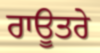
ਰਾਊਤਰੇ